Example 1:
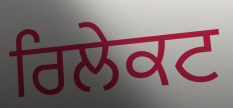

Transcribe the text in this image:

ਰਿਲੇਕਟ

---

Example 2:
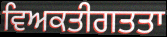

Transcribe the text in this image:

ਵਿਅਕਤੀਗਤਤਾ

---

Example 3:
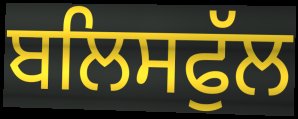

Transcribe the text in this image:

ਬਲਿਸਫੁੱਲ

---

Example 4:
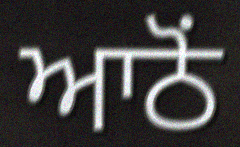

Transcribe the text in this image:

ਆਠੋਂ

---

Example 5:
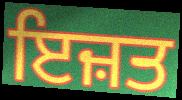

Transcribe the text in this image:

ਇਜ਼ਤ